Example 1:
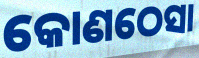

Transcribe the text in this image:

କୋଣଠେସା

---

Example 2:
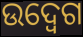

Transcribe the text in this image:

ଉଦ୍ବେଗ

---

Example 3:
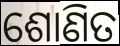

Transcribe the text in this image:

ଶୋଣିତ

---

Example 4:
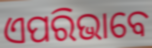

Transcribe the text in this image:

ଏପରିଭାବେ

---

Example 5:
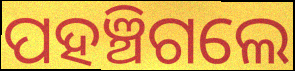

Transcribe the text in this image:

ପହଞ୍ଚିଗଲେ